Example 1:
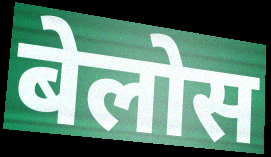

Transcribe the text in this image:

बेलोस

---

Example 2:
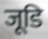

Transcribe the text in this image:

जूडि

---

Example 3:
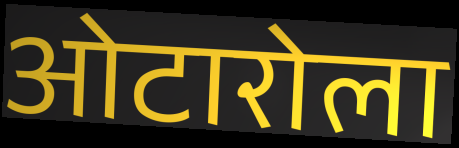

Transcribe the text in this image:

ओटारोला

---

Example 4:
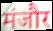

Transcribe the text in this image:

मंजौर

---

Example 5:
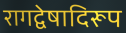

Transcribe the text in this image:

रागद्वेषादिरूप